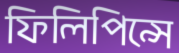
ফিলিপিন্সে